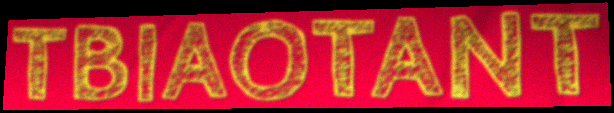
TBIAOTANT